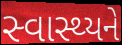
સ્વાસ્થ્યને